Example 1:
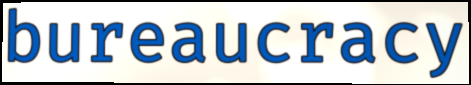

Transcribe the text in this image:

bureaucracy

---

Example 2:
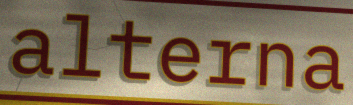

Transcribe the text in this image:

alterna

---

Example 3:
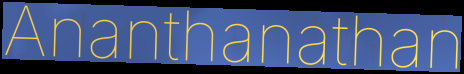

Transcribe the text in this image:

Ananthanathan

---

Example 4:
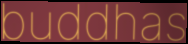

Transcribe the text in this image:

buddhas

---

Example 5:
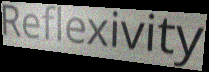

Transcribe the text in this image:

Reflexivity